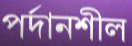
পর্দানশীল